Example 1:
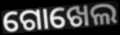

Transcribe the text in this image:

ଗୋଖେଲ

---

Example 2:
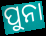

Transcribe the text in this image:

ପୁନା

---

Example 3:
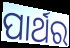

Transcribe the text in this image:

ପାର୍ଥର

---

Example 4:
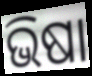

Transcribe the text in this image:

ଭିଷା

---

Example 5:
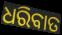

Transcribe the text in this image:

ଧରିବାତ